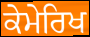
ਕੇਮੇਰਿਖ